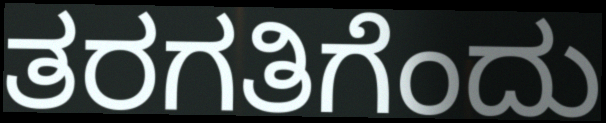
ತರಗತಿಗೆಂದು